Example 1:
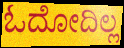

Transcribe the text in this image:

ಓದೋದಿಲ್ಲ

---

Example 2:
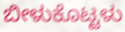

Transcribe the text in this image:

ಬೀಳುಕೊಟ್ಟಳು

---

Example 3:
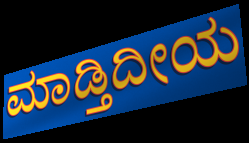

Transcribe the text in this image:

ಮಾಡ್ತಿದೀಯ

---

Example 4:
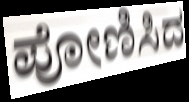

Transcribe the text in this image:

ಪೋಣಿಸಿದ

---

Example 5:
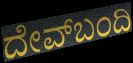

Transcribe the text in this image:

ದೇವ್‌ಬಂದಿ